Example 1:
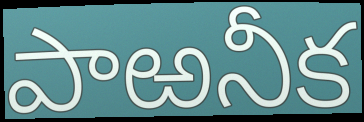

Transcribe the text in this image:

పాఱనీక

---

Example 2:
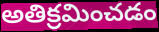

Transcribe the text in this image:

అతిక్రమించడం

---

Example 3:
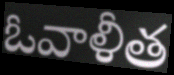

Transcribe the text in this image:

ఓవాళీత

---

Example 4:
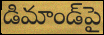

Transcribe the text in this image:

డిమాండ్‌పై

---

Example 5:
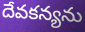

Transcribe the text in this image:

దేవకన్యను